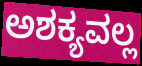
ಅಶಕ್ಯವಲ್ಲ